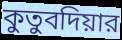
কুতুবদিয়ার